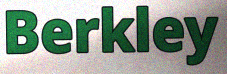
Berkley